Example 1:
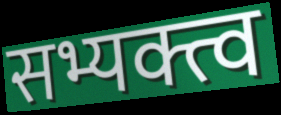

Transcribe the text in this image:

सभ्यक्त्व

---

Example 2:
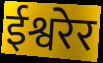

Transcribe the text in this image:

ईश्वरेर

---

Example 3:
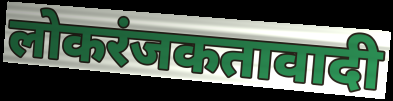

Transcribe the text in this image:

लोकरंजकतावादी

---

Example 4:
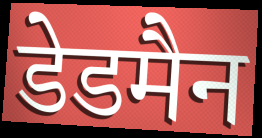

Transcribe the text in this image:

डेडमैन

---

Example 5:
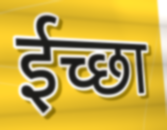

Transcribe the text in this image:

ईच्छा